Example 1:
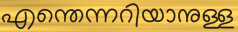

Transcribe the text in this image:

എന്തെന്നറിയാനുള്ള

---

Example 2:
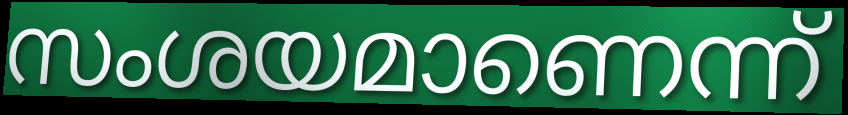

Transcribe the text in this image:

സംശയമാണെന്ന്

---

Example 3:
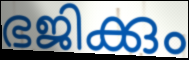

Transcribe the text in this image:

ഭജിക്കും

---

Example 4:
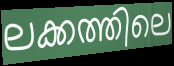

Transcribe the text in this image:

ലക്കത്തിലെ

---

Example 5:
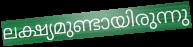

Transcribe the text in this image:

ലക്ഷ്യമുണ്ടായിരുന്നു